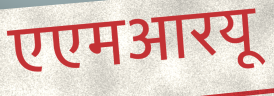
एएमआरयू